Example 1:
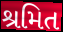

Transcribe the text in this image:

શ્રમિત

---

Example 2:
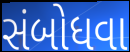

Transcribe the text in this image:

સંબોધવા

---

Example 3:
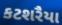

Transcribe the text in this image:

કટશરૈયા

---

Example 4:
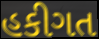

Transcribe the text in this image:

હકીગત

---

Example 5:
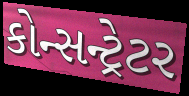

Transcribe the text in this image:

કોન્સન્ટ્રેટર